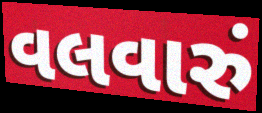
વલવારું